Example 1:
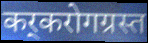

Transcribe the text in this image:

कर्करोगग्रस्त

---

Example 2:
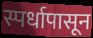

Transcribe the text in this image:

स्पर्धापासून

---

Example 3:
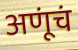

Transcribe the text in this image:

अणूंचं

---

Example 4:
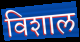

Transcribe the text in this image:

विशाल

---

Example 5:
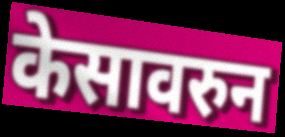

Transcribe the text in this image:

केसावरुन